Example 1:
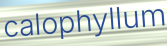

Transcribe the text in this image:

calophyllum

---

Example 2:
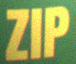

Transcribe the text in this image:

ZIP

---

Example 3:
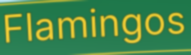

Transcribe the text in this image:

Flamingos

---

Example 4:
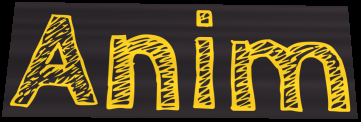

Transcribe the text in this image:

Anim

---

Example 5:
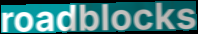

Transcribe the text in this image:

roadblocks